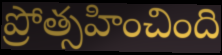
ప్రోత్సహించింది